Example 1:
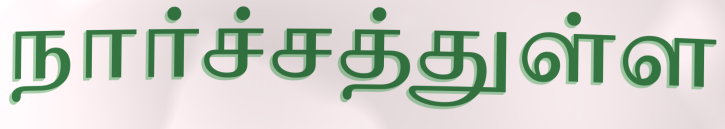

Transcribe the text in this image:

நார்ச்சத்துள்ள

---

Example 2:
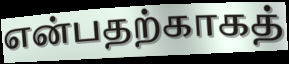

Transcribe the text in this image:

என்பதற்காகத்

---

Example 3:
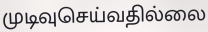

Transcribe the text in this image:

முடிவுசெய்வதில்லை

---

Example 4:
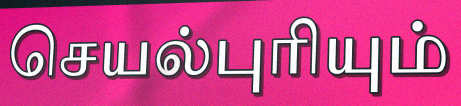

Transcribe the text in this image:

செயல்புரியும்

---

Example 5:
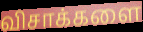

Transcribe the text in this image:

விசாக்களை